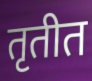
तृतीत